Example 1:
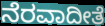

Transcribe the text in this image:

ನೆರವಾದೀತೆ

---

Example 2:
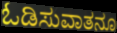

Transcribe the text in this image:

ಓಡಿಸುವಾತನೂ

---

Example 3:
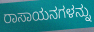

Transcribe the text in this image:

ರಾಸಾಯನಗಳನ್ನು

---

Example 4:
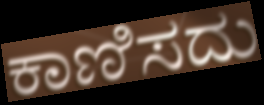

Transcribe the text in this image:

ಕಾಣಿಸದು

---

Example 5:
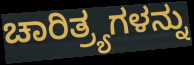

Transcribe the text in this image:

ಚಾರಿತ್ರ್ಯಗಳನ್ನು